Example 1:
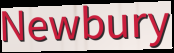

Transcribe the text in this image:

Newbury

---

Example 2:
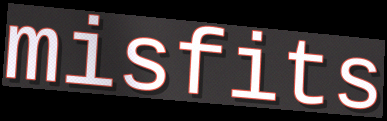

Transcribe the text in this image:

misfits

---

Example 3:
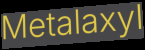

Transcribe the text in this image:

Metalaxyl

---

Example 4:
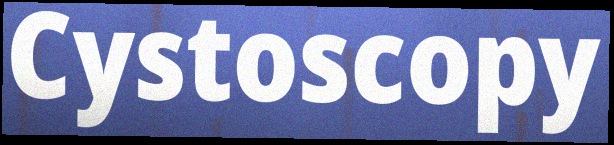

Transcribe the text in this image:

Cystoscopy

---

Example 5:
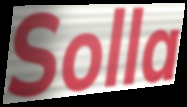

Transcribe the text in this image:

Solla